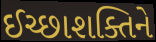
ઈચ્છાશક્તિને